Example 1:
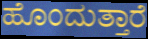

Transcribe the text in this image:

ಹೊಂದುತ್ತಾರೆ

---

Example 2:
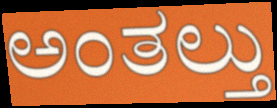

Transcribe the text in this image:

ಅಂತಲ್ತು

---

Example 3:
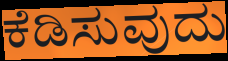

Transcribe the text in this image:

ಕೆಡಿಸುವುದು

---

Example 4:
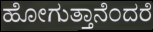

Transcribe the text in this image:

ಹೋಗುತ್ತಾನೆಂದರೆ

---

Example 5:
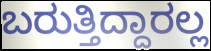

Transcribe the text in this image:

ಬರುತ್ತಿದ್ದಾರಲ್ಲ